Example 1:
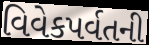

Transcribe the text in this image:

વિવેકપર્વતની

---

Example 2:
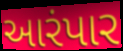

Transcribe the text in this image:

આરંપાર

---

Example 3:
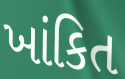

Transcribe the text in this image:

ખાંકિત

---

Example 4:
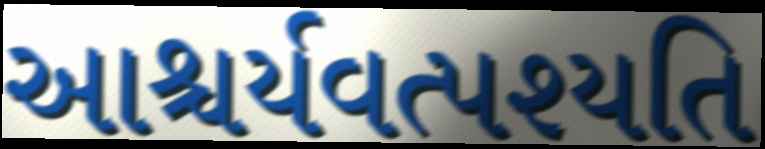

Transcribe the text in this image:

આશ્ચર્યવત્પશ્યતિ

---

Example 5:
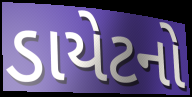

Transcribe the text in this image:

ડાયેટનો